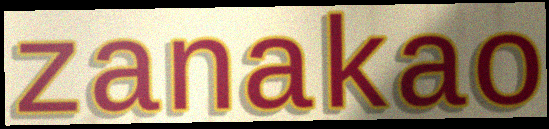
zanakao